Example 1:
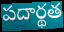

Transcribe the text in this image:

పదార్థత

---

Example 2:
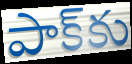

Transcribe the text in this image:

పాక్‌కు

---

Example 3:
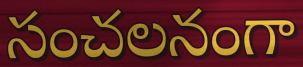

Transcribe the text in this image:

సంచలనంగా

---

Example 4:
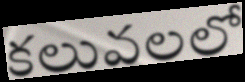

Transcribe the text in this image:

కలువలలో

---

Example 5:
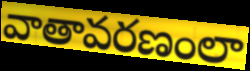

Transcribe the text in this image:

వాతావరణంలా